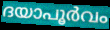
ദയാപൂർവം